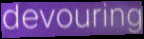
devouring